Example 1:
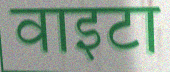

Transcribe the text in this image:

वाइटा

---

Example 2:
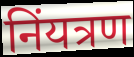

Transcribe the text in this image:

निंयत्रण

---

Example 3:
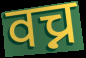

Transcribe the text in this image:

वच्न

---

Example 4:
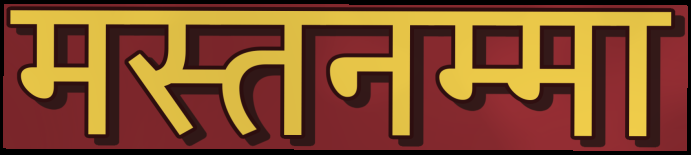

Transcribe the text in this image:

मस्तनम्मा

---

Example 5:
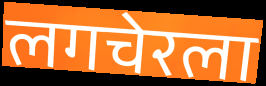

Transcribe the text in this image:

लगचेरला